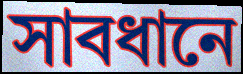
সাবধানে